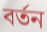
বৰ্তন